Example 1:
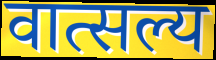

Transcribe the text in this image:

वात्सल्य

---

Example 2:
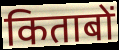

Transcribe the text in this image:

किताबों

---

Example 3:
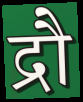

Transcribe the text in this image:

द्रौ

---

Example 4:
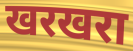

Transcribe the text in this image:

खरखरा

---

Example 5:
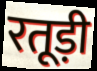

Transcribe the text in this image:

रतूड़ी